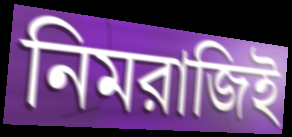
নিমরাজিই